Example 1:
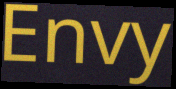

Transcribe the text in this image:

Envy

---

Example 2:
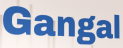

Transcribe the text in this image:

Gangal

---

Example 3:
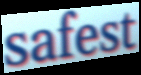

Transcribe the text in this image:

safest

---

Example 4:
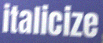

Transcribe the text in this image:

italicize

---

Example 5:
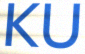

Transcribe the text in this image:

KU